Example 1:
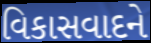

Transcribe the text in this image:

વિકાસવાદને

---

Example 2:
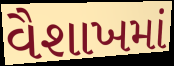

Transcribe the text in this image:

વૈશાખમાં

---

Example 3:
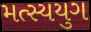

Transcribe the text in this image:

મત્સ્યયુગ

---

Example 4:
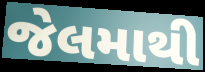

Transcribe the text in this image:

જેલમાથી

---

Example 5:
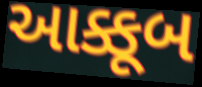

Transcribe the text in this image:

આક્કૂબ